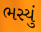
ભસ્યું